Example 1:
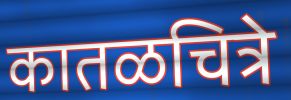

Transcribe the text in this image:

कातळचित्रे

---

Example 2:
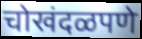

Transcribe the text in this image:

चोखंदळपणे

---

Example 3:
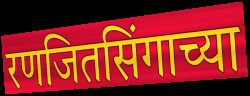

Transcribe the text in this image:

रणजितसिंगाच्या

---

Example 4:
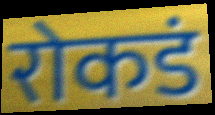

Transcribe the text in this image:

रोकडं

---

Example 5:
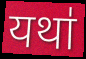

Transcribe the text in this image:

यथा॑